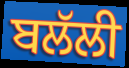
ਬਲੱਲੀ